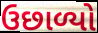
ઉછાળ્યો